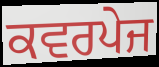
ਕਵਰਪੇਜ